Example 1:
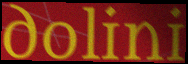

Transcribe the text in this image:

dolini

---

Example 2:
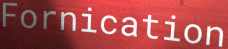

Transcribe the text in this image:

Fornication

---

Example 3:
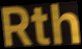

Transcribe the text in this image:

Rth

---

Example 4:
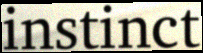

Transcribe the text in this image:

instinct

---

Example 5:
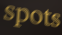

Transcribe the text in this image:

spots